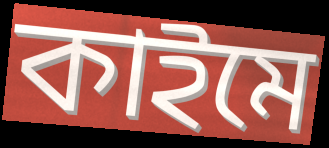
কাইমে